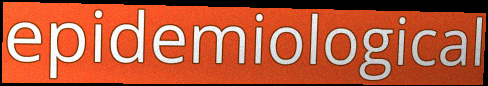
epidemiological